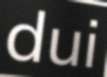
dui